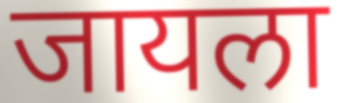
जायला